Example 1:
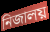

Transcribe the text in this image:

নিজালয়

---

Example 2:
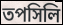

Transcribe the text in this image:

তপসিলি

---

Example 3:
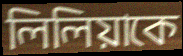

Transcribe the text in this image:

লিলিয়াকে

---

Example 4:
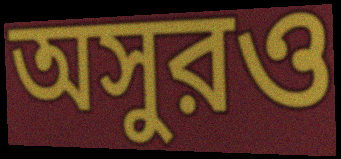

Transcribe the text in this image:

অসুরও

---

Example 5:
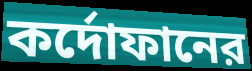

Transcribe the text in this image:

কর্দোফানের